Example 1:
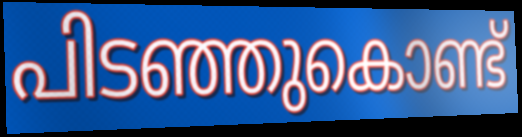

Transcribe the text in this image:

പിടഞ്ഞുകൊണ്ട്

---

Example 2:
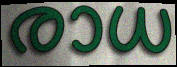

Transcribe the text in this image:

രാധ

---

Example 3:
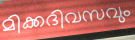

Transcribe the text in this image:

മിക്കദിവസവും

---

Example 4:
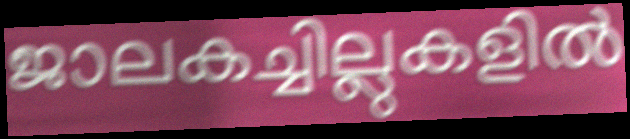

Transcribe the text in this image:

ജാലകച്ചില്ലുകളിൽ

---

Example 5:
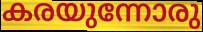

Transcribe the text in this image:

കരയുന്നോരു